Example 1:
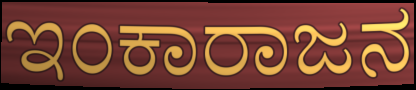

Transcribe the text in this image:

ಇಂಕಾರಾಜನ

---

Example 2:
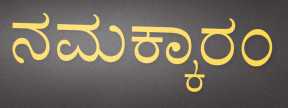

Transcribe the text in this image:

ನಮಕ್ಕಾರಂ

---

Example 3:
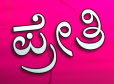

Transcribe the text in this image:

ಪ್ರೇತಿ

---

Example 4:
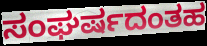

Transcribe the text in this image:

ಸಂಘರ್ಷದಂತಹ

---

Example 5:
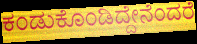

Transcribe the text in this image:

ಕಂಡುಕೊಂಡಿದ್ದೇನೆಂದರೆ